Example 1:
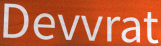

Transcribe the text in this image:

Devvrat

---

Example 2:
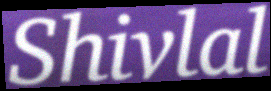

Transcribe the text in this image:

Shivlal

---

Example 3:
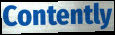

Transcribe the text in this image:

Contently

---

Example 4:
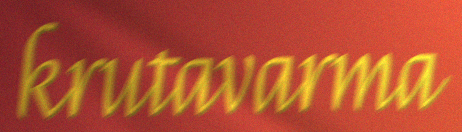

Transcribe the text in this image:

krutavarma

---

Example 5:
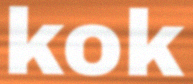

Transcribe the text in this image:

kok